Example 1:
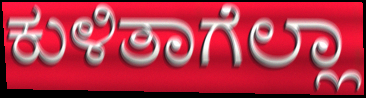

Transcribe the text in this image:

ಕುಳಿತಾಗೆಲ್ಲಾ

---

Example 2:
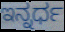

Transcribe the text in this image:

ಇನ್ನರ್ಧ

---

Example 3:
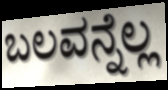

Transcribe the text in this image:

ಬಲವನ್ನೆಲ್ಲ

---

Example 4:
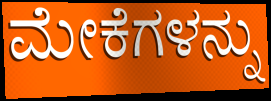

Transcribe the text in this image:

ಮೇಕೆಗಳನ್ನು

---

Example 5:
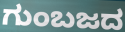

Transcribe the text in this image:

ಗುಂಬಜದ